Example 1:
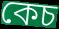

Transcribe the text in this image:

কেচ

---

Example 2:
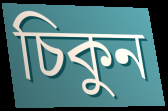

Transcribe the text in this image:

চিকুন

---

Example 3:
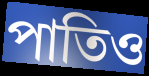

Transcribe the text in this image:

পাতিও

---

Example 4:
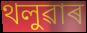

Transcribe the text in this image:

থলুৱাৰ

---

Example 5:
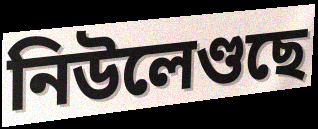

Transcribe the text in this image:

নিউলেণ্ডছে